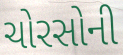
ચોરસોની